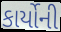
કાર્યોની